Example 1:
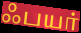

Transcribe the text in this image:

ஃபயர்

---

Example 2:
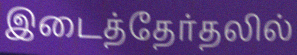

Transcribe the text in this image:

இடைத்தேர்தலில்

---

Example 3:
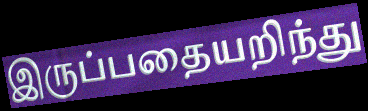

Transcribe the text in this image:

இருப்பதையறிந்து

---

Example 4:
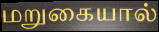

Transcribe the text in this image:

மறுகையால்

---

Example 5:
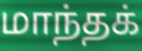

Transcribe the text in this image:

மாந்தக்